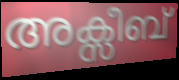
അക്സീബ്